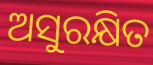
ଅସୁରକ୍ଷିତ